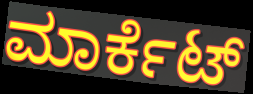
ಮಾರ್ಕೆಟ್